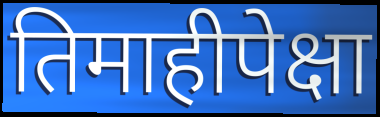
तिमाहीपेक्षा